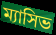
ম্যাসিভ